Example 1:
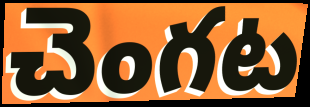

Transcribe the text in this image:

చెంగట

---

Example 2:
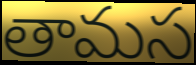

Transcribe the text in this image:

తామస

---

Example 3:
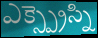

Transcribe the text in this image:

ఎక్స్ప్రెస్ని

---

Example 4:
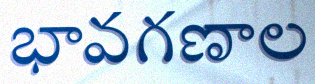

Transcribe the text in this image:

భావగణాల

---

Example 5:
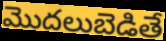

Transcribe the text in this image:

మొదలుబెడితే